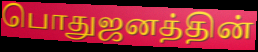
பொதுஜனத்தின்